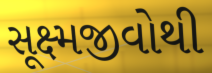
સૂક્ષ્મજીવોથી